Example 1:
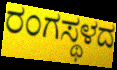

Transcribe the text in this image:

ರಂಗಸ್ಥಳದ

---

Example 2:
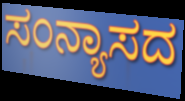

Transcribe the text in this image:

ಸಂನ್ಯಾಸದ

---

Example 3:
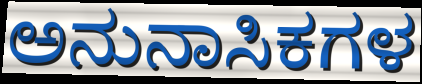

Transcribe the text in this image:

ಅನುನಾಸಿಕಗಳ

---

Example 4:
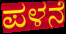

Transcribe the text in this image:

ಪಳನೆ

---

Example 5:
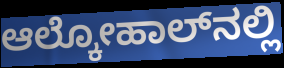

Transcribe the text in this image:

ಆಲ್ಕೋಹಾಲ್‌ನಲ್ಲಿ